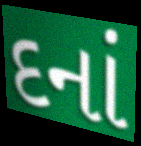
દનાં